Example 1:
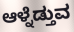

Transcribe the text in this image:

ಆಳ್ನೆಡ್ತುವ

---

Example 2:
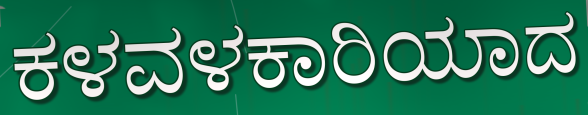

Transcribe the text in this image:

ಕಳವಳಕಾರಿಯಾದ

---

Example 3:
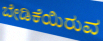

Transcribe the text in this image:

ಬೇಡಿಕೆಯಿರುವ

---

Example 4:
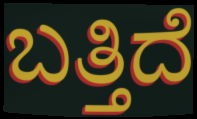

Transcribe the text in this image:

ಬತ್ತಿದೆ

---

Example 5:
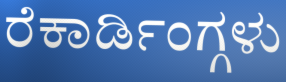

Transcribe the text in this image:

ರೆಕಾರ್ಡಿಂಗ್ಗಳು